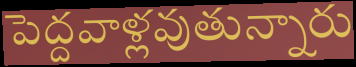
పెద్దవాళ్లవుతున్నారు